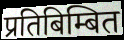
प्रतिबिम्बित